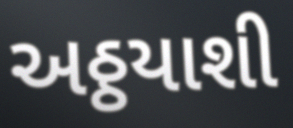
અઠ્ઠયાશી